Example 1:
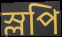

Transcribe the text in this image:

স্লপি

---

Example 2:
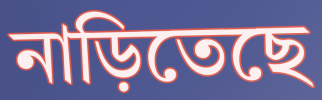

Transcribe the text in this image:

নাড়িতেছে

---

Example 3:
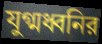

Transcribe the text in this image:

যুগ্মধ্বনির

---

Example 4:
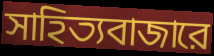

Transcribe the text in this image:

সাহিত্যবাজারে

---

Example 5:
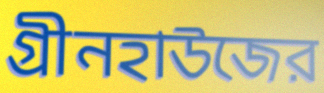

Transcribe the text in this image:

গ্রীনহাউজের